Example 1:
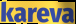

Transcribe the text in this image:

kareva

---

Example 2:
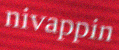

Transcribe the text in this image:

nivappin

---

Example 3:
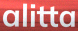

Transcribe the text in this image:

alitta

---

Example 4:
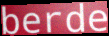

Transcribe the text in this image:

berde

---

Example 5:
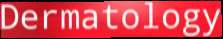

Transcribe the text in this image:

Dermatology